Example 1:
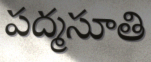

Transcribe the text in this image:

పద్మసూతి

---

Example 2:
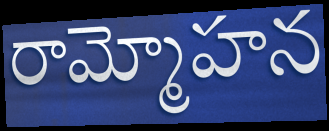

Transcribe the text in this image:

రామ్మోహన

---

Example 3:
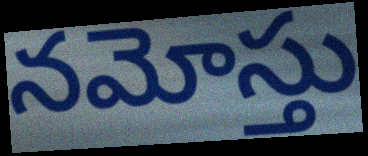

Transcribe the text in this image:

నమోస్తు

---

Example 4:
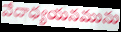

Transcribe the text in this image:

వేదాధ్యయనమును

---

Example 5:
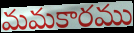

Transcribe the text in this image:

మమకారము